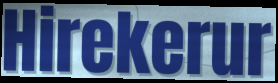
Hirekerur